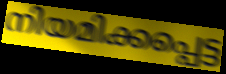
നിയമിക്കപ്പെട്ട